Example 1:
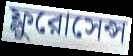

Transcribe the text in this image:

ফ্লুরোসেন্স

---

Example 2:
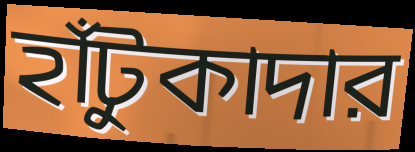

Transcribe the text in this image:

হাঁটুকাদার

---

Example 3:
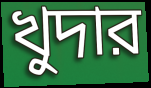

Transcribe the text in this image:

খুদার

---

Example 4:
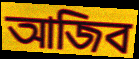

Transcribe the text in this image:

আজিব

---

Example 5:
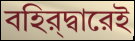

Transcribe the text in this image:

বহির্‌দ্বারেই